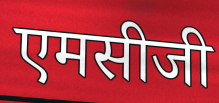
एमसीजी